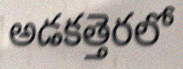
అడకత్తెరలో